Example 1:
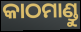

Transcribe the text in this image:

କାଠମାଣ୍ଡୁ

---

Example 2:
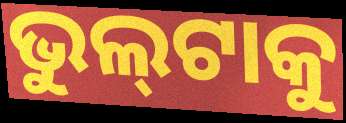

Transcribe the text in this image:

ଭୁଲ୍‍ଟାକୁ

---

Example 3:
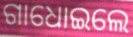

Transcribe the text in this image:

ଗାଧୋଇଲେ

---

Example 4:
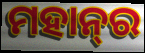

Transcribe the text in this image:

ମହାନ୍‌ର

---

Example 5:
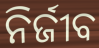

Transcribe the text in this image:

ନିର୍ଜୀବ